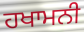
ਹਖਾਮਨੀ